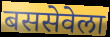
बससेवेला